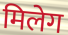
मिलेग